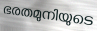
ഭരതമുനിയുടെ